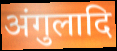
अंगुलादि